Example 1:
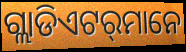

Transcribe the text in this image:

ଗ୍ଲାଡିଏଟର୍‍ମାନେ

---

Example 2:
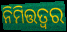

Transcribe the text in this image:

ନିମିତ୍ତତ୍ଵର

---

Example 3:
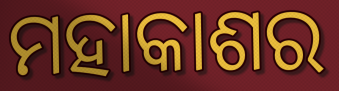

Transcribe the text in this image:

ମହାକାଶର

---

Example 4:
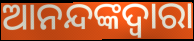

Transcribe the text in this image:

ଆନନ୍ଦଙ୍କଦ୍ୱାରା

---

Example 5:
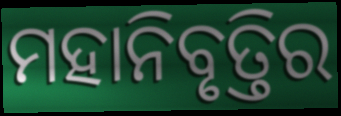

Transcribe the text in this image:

ମହାନିବୃତ୍ତିର